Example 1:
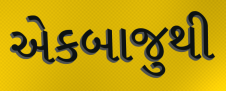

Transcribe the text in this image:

એકબાજુથી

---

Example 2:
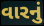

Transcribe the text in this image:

વારનું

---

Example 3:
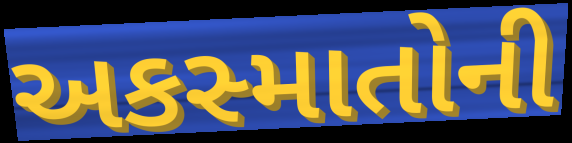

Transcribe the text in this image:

અકસ્માતોની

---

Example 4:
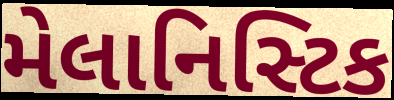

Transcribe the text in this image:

મેલાનિસ્ટિક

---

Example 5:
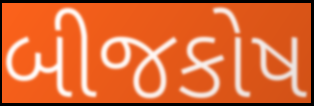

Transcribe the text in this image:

બીજકોષ